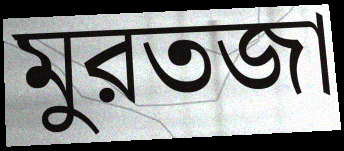
মুরতজা